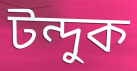
টন্দুক